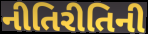
નીતિરીતિની